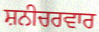
ਸ਼ਨੀਚਰਵਾਰ